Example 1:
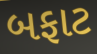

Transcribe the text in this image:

બફાટ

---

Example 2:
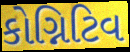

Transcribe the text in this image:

કોગ્નિટિવ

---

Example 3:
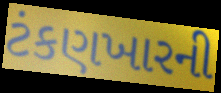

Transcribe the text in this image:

ટંકણખારની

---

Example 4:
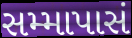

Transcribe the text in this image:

સમ્માપાસં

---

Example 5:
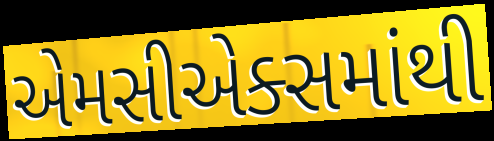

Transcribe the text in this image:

એમસીએક્સમાંથી